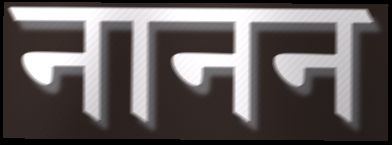
नानन